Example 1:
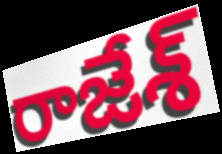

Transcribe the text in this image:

రాజేశ్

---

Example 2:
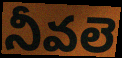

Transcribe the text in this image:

నీవలె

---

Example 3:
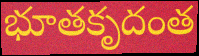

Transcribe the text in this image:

భూతకృదంత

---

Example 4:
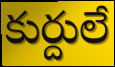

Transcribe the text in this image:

కుర్దులే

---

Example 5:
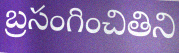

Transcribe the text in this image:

బ్రసంగించితిని